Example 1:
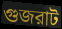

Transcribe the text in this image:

গুজরাট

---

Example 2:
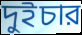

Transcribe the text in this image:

দুইচার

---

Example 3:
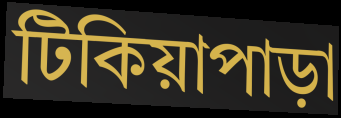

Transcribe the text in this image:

টিকিয়াপাড়া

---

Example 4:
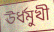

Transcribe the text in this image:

ঊর্ধমুখী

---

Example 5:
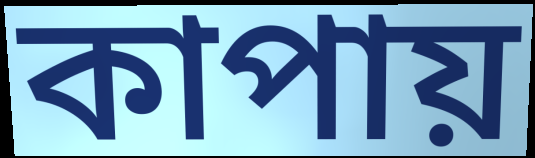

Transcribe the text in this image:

কাপায়